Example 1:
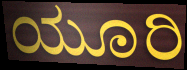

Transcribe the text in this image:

ಯೂರಿ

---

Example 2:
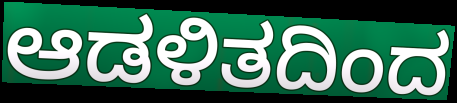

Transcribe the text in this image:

ಆಡಳಿತದಿಂದ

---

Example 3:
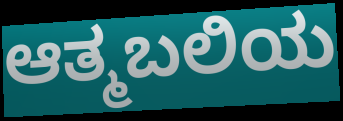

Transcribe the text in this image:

ಆತ್ಮಬಲಿಯ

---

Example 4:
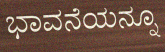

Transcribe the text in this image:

ಭಾವನೆಯನ್ನೂ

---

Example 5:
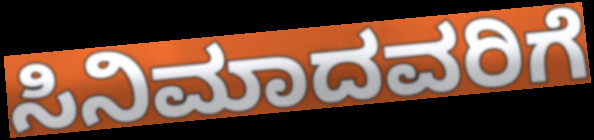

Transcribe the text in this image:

ಸಿನಿಮಾದವರಿಗೆ